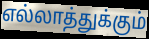
எல்லாத்துக்கும்